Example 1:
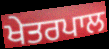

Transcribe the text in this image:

ਖੇਤਰਪਾਲ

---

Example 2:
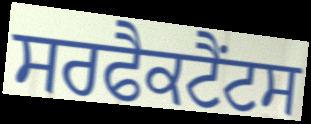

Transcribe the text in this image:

ਸਰਫੈਕਟੈਂਟਸ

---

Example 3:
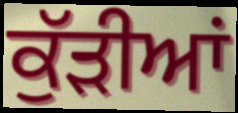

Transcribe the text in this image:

ਕੁੱੜੀਆਂ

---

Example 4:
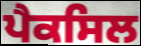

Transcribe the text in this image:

ਪੈਕਸਿਲ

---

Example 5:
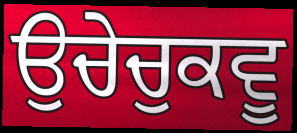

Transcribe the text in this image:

ਉਚੇਚੁਕਵੂ